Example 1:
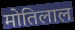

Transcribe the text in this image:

मोतिलाल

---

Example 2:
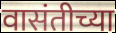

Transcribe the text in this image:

वासंतीच्या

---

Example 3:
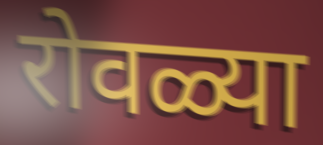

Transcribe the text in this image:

रोवळ्या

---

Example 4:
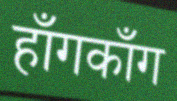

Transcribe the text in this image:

हाँगकाँग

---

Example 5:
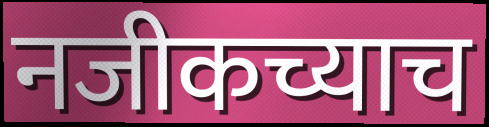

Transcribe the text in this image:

नजीकच्याच